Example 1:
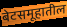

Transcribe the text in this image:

बेटसमूहातील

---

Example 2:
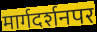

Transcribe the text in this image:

मार्गदर्शनपर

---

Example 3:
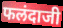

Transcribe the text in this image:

फलंदाजी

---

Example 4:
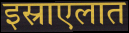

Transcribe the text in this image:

इस्राएलात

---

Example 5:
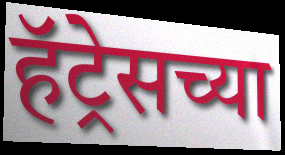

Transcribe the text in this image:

हॅट्रेसच्या